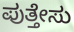
ಪುತ್ತೇಸು